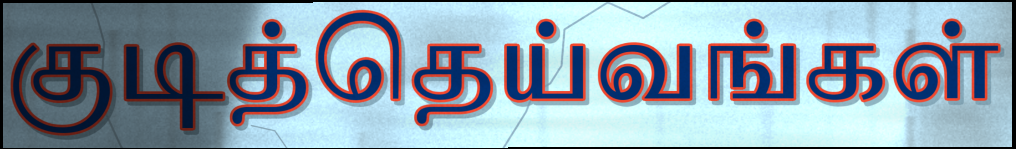
குடித்தெய்வங்கள்